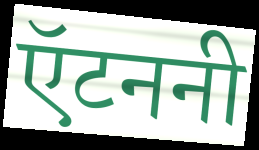
ऍटननी